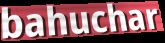
bahuchar